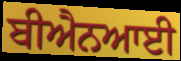
ਬੀਐਨਆਈ